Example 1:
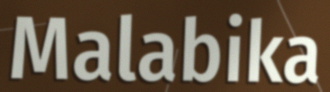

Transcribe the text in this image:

Malabika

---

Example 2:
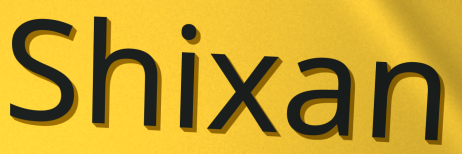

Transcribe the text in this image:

Shixan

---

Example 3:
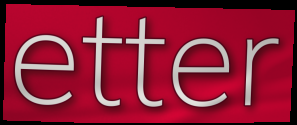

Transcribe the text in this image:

etter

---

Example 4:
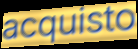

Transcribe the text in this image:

acquisto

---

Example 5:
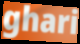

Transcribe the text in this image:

ghari